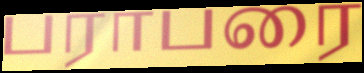
பராபரை